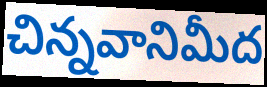
చిన్నవానిమీద